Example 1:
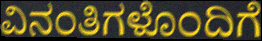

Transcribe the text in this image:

ವಿನಂತಿಗಳೊಂದಿಗೆ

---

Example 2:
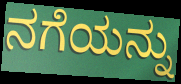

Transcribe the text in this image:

ನಗೆಯನ್ನು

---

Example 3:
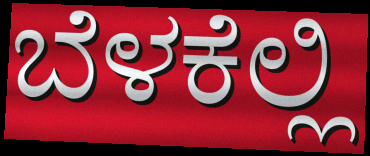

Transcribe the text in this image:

ಬೆಳಕೆಲ್ಲಿ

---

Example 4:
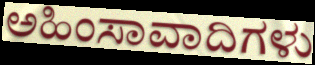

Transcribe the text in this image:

ಅಹಿಂಸಾವಾದಿಗಳು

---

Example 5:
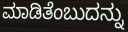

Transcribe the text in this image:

ಮಾಡಿತೆಂಬುದನ್ನು